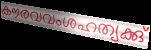
കൗരവവംശഹത്യക്കു്